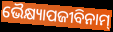
ଭୈକ୍ଷ୍ୟାପଜୀବିନାମ୍